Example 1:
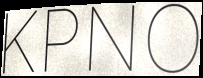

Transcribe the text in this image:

KPNO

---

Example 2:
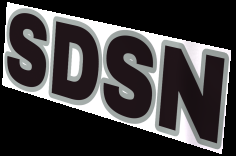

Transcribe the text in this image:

SDSN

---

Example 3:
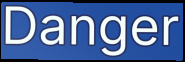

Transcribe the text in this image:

Danger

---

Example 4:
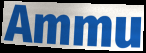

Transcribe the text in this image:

Ammu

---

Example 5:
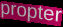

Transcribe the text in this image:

propter